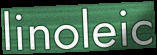
linoleic